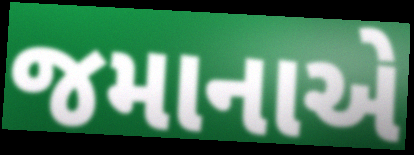
જમાનાએ